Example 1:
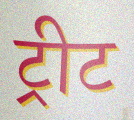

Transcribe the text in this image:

ट्रीट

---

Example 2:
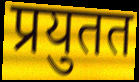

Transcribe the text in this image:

प्रयुतत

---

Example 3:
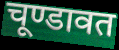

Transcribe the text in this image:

चूण्डावत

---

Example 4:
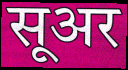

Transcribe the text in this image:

सूअर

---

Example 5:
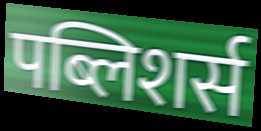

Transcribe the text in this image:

पब्लिशर्स